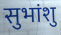
सुभांशु